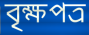
বৃক্ষপত্র